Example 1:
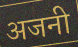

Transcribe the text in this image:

अजनी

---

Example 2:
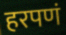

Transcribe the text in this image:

हरपणं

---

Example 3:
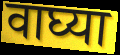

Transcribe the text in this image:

वाघ्या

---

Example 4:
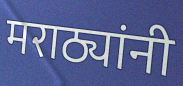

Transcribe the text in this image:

मराठ्यांनी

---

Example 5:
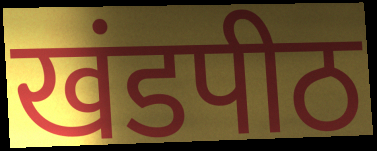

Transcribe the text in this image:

खंडपीठ